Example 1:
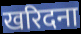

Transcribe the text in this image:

खरिदना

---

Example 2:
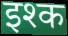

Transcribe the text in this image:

इश्क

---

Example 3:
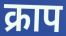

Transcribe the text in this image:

क्राप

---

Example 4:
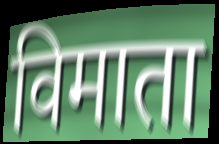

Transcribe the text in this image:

विमाता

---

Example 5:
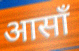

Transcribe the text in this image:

आसाँ